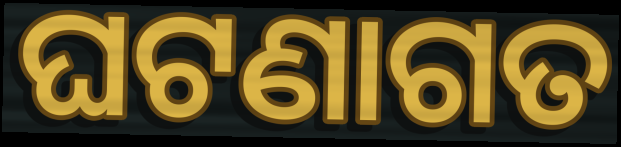
ଘଟଣାଗତ